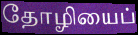
தோழியைப்